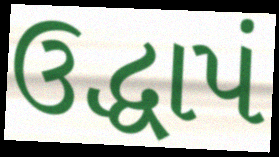
ઉદ્ધાપં